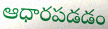
ఆధారపడడం